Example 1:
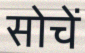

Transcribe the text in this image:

सोचें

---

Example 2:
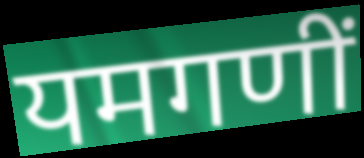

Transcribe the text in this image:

यमगणीं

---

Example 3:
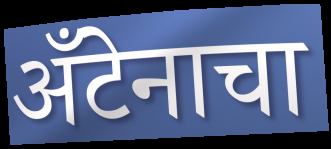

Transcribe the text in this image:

अँटेनाचा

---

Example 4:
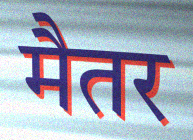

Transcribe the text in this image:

मैतर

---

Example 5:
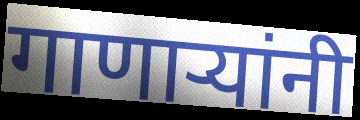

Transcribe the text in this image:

गाणाऱ्यांनी